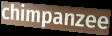
chimpanzee